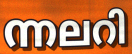
ന്നലറി